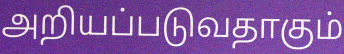
அறியப்படுவதாகும்